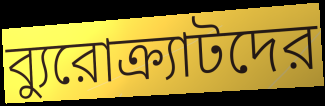
ব্যুরোক্র্যাটদের